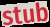
stub